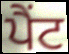
ਪੈਂਟ